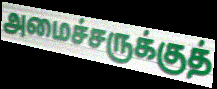
அமைச்சருக்குத்